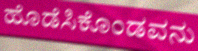
ಹೊಡೆಸಿಕೊಂಡವನು